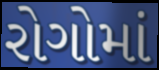
રોગોમાં